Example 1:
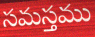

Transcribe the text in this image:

సమస్తము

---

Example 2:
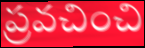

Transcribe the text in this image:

ప్రవచించి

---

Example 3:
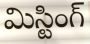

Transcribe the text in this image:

మిస్టింగ్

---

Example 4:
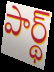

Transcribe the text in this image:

పార్థ్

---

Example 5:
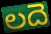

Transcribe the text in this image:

లదె